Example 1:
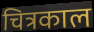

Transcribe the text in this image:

चित्रकाल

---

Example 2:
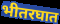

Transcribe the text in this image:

भीतरघात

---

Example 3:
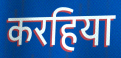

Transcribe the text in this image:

करहिया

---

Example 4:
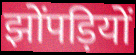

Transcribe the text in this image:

झोंपड़ियों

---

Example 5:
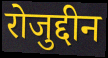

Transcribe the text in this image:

रोजुद्दीन